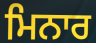
ਮਿਨਾਰ